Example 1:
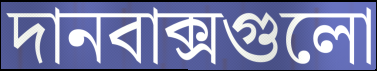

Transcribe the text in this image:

দানবাক্সগুলো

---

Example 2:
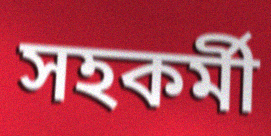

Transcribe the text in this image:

সহকর্মী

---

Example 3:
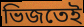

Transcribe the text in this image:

ভিজতেই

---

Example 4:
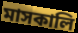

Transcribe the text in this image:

মাসকালি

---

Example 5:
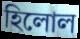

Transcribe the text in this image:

হিলোল